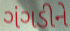
ગંગડીને